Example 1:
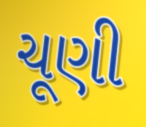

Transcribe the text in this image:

ચૂણી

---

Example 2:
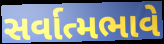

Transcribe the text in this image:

સર્વાત્મભાવે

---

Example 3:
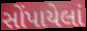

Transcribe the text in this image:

સોંપાયેલાં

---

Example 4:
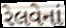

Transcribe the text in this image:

રેલવેનાં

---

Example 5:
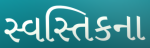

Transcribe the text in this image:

સ્વસ્તિકના